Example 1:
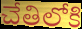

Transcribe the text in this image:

చేతిలోకి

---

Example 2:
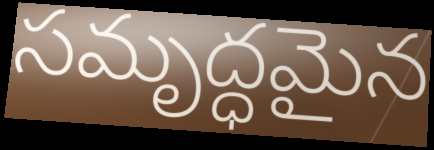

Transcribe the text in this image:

సమృద్ధమైన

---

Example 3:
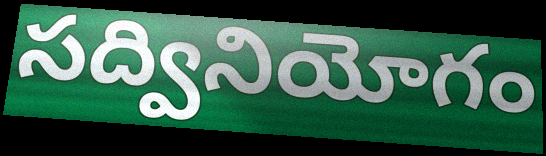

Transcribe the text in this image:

సద్వినియోగం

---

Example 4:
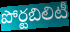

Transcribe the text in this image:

పోర్టబిలిటీ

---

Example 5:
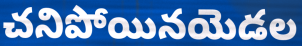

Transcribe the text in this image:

చనిపోయినయెడల